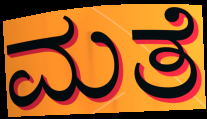
ಮತೆ